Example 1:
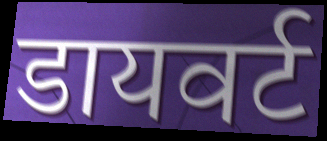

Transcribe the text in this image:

डायवर्ट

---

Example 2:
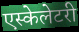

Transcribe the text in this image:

एस्केलेटरी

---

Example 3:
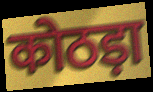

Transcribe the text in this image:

कोठड़ा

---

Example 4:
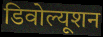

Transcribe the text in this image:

डिवोल्यूशन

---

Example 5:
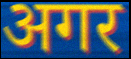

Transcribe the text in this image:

अगर